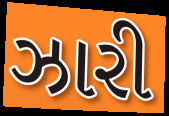
ઝારી